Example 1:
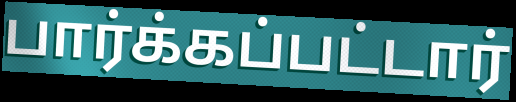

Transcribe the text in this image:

பார்க்கப்பட்டார்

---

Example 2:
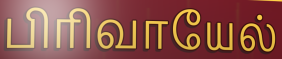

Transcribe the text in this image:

பிரிவாயேல்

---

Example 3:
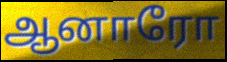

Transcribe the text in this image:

ஆனாரோ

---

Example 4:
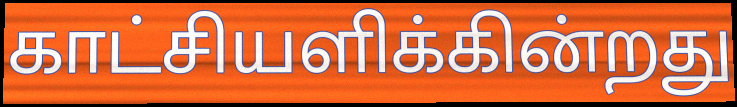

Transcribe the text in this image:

காட்சியளிக்கின்றது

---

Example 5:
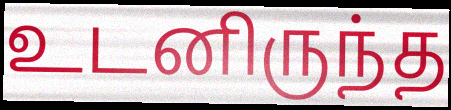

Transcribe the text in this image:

உடனிருந்த